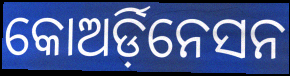
କୋଅର୍ଡ଼ିନେସନ